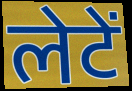
लेटें